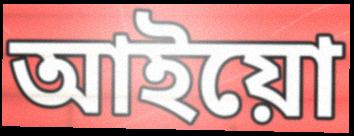
আইয়ো